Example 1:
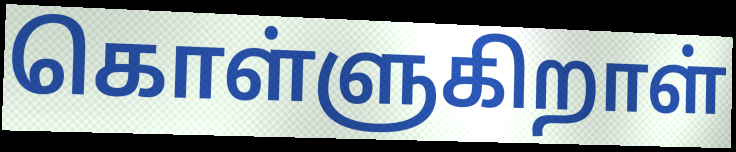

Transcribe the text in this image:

கொள்ளுகிறாள்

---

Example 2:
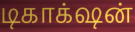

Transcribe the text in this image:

டிகாக்‌ஷன்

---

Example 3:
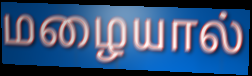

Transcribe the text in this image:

மழையால்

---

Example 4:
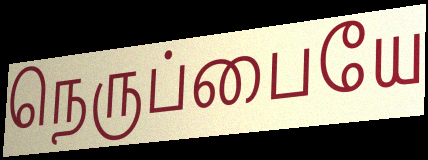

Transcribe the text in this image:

நெருப்பையே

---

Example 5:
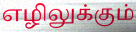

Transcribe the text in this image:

எழிலுக்கும்